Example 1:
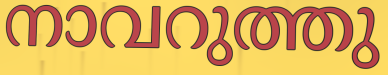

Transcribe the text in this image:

നാവറുത്തു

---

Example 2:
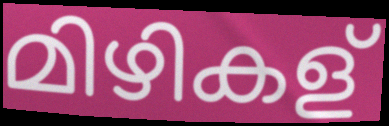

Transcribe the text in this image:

മിഴികള്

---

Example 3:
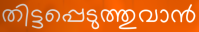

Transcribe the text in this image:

തിട്ടപ്പെടുത്തുവാൻ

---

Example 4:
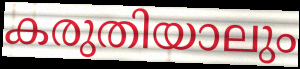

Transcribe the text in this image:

കരുതിയാലും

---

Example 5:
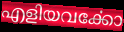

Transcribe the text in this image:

എളിയവൎക്കോ